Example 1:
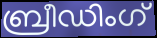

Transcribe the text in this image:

ബ്രീഡിംഗ്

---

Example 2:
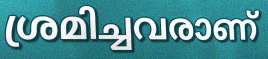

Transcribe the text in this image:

ശ്രമിച്ചവരാണ്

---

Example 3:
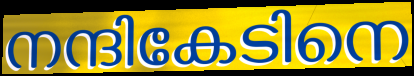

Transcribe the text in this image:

നന്ദികേടിനെ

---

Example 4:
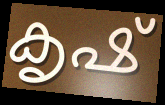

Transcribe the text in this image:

കൃഷ്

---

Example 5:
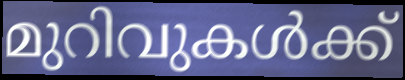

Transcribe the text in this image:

മുറിവുകൾക്ക്